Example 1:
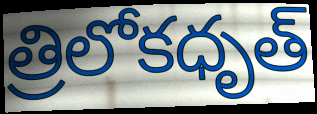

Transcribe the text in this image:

త్రిలోకధృత్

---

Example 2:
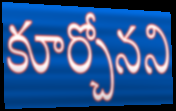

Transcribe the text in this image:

కూర్చోనని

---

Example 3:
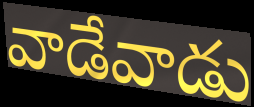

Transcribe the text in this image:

వాడేవాడు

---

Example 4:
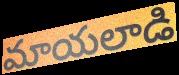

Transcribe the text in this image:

మాయలాడి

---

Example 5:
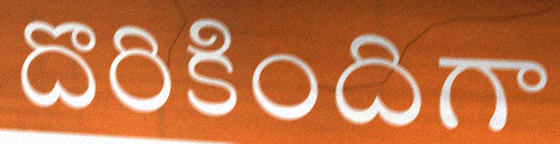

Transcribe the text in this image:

దొరికిందిగా